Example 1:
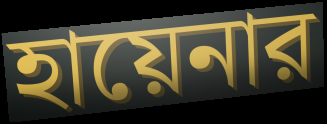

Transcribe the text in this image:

হায়েনার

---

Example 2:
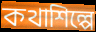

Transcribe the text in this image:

কথাশিল্পে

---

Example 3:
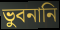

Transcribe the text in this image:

ভুবনানি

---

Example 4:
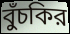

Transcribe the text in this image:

বুঁচকির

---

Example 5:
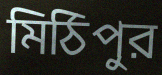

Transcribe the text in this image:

মিঠিপুর